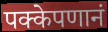
पक्केपणानं